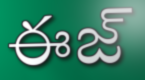
ఈజ్